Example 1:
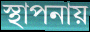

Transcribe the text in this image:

স্থাপনায়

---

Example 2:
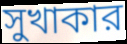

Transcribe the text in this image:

সুখাকার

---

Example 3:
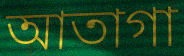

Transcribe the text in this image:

আতাগা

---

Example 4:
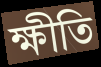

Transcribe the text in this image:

ক্ষীতি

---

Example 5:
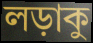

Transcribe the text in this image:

লড়াকু